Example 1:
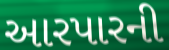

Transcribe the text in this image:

આરપારની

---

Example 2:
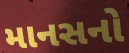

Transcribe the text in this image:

માનસનો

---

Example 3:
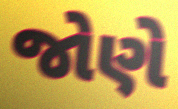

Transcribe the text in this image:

જોણે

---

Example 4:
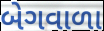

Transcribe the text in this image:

બેગવાળા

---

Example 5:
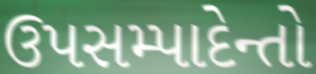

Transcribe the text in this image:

ઉપસમ્પાદેન્તો